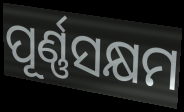
ପୂର୍ଣ୍ଣସକ୍ଷମ